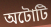
অটোটি